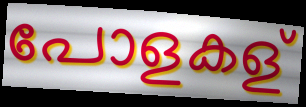
പോളകള്